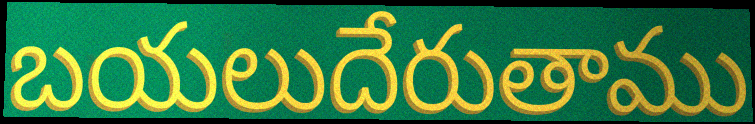
బయలుదేరుతాము